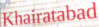
Khairatabad